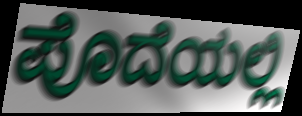
ಪೊದೆಯಲ್ಲಿ